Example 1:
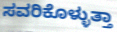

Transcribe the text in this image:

ಸವರಿಕೊಳ್ಳುತ್ತಾ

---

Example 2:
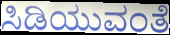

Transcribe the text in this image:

ಸಿಡಿಯುವಂತೆ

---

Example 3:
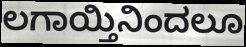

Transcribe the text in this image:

ಲಗಾಯ್ತಿನಿಂದಲೂ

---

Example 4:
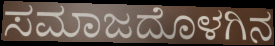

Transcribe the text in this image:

ಸಮಾಜದೊಳಗಿನ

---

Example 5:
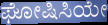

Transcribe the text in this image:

ಘೋಷಿಸಿಯೇ